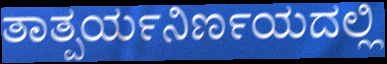
ತಾತ್ಪರ್ಯನಿರ್ಣಯದಲ್ಲಿ